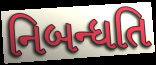
નિબન્ધતિ